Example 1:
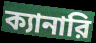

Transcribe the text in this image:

ক্যানারি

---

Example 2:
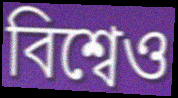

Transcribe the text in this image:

বিশ্বেও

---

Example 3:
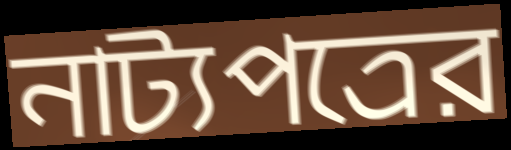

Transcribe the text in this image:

নাট্যপত্রের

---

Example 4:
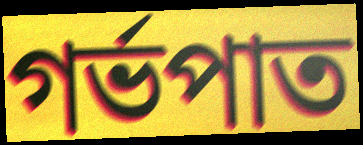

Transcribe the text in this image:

গর্ভপাত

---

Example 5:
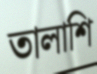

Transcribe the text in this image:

তালাশি